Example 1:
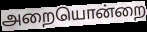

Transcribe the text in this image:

அறையொன்றை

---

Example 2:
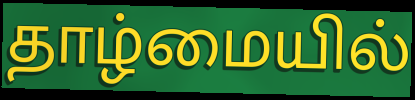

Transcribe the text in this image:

தாழ்மையில்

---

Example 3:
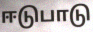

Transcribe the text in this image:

ஈடுபாடு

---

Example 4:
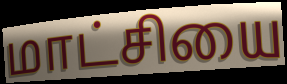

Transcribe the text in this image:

மாட்சியை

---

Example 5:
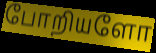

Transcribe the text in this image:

போறியளோ